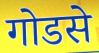
गोडसे